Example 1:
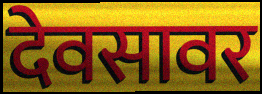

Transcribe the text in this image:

देवसावर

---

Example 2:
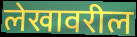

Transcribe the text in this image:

लेखावरील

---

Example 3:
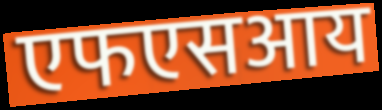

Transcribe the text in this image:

एफएसआय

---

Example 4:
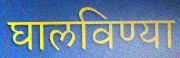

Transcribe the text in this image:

घालविण्या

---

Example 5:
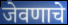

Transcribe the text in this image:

जेवणाचे